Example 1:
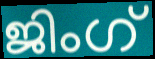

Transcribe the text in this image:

ജിംഗ്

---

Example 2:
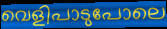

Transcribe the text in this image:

വെളിപാടുപോലെ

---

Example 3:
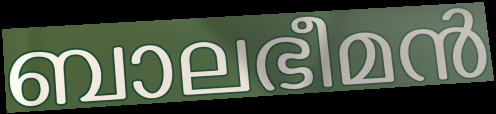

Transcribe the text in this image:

ബാലഭീമൻ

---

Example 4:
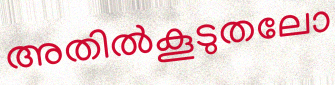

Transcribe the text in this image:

അതിൽകൂടുതലോ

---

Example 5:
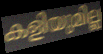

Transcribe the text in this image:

കളിയുമില്ല